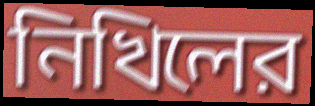
নিখিলের